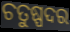
ଚତୁଷ୍ପଦର